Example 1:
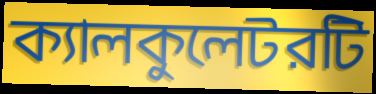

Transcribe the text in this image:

ক্যালকুলেটরটি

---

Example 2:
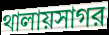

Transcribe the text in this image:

থালায়সাগর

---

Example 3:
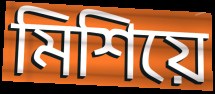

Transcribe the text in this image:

মিশিয়ে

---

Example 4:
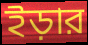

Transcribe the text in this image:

ইড়ার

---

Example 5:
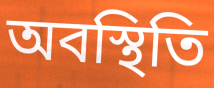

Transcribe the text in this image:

অবস্থিতি